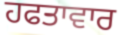
ਹਫਤਾਵਾਰ